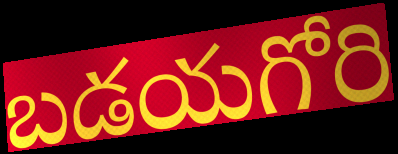
బడయగోరి